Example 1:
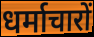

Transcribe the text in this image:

धर्माचारों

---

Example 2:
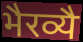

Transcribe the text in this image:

भैरव्यै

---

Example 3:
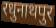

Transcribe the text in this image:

रधुनाथपुर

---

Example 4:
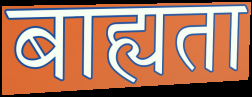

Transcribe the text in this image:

बाह्यता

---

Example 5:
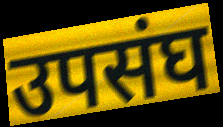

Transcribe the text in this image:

उपसंघ